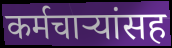
कर्मचाऱ्यांसह